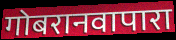
गोबरानवापारा